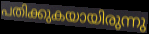
പതിക്കുകയായിരുന്നു